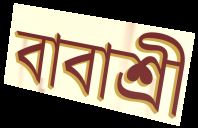
বাবাশ্রী